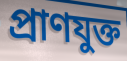
প্রাণযুক্ত